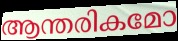
ആന്തരികമോ